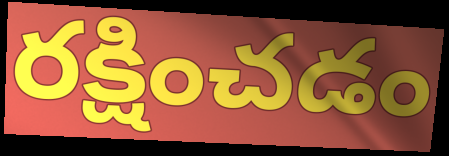
రక్షించడం